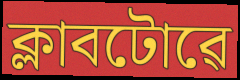
ক্লাবটোৱে